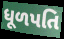
ધૂળપતિ